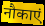
नौकाएं